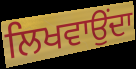
ਲਿਖਵਾਉਂਦਾ